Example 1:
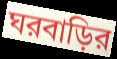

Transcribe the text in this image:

ঘরবাড়ির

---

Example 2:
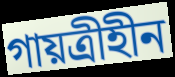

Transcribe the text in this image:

গায়ত্রীহীন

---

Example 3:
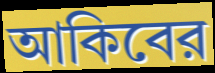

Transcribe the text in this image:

আকিবের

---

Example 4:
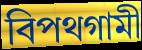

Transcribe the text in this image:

বিপথগামী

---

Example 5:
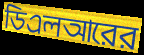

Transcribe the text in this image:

ডিএলআরের